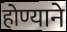
होण्याने